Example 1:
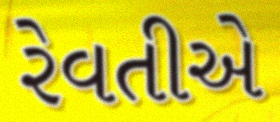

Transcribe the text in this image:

રેવતીએ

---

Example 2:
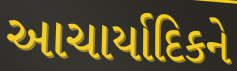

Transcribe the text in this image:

આચાર્યાદિકને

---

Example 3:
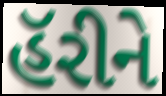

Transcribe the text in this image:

હૅરીને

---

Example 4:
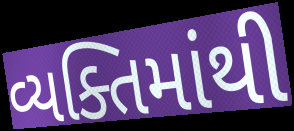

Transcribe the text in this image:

વ્યક્તિમાંથી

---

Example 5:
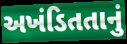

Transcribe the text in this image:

અખંડિતતાનું